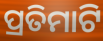
ପ୍ରତିମାଟି